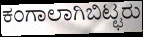
ಕಂಗಾಲಾಗಿಬಿಟ್ಟರು